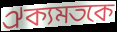
ঐক্যমতকে